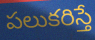
పలుకరిస్తే